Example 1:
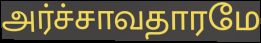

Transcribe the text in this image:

அர்ச்சாவதாரமே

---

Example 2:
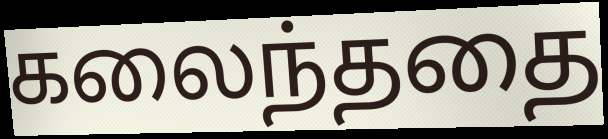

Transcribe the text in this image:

கலைந்ததை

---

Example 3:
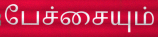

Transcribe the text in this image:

பேச்சையும்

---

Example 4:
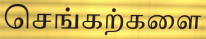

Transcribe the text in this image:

செங்கற்களை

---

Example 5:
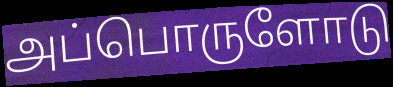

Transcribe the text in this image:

அப்பொருளோடு